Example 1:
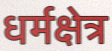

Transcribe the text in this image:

धर्मक्षेत्र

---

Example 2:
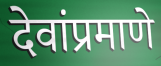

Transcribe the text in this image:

देवांप्रमाणे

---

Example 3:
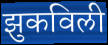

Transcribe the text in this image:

झुकविली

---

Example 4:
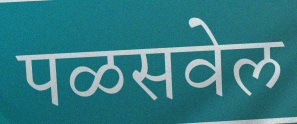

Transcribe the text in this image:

पळसवेल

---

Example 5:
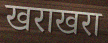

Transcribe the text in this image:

खराखरा